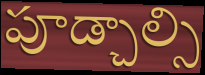
పూడ్చాల్సి